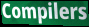
Compilers